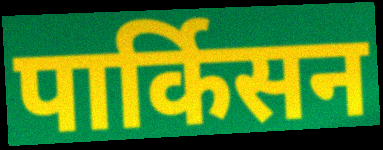
पार्किसन